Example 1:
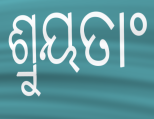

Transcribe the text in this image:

ଶ୍ରୁୟତାଂ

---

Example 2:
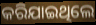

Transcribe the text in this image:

କରିଯାଇଥିଲେ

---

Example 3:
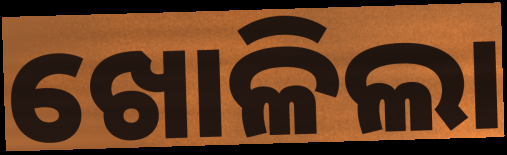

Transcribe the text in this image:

ଖୋଳିଲା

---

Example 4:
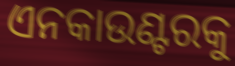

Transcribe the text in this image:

ଏନକାଉଣ୍ଟରକୁ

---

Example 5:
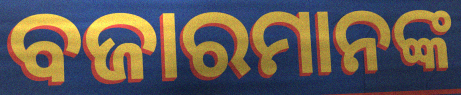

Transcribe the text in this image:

ବଜାରମାନଙ୍କ